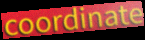
coordinate